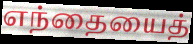
எந்தையைத்